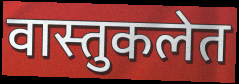
वास्तुकलेत